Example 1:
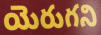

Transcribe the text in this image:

యెరుగని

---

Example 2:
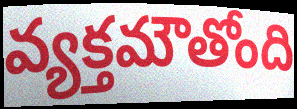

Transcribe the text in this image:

వ్యక్తమౌతోంది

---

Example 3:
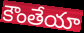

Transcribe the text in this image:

కౌంతేయా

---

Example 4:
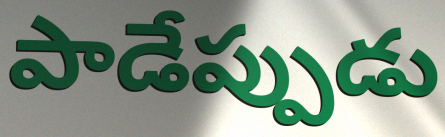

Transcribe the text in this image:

పాడేప్పుడు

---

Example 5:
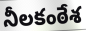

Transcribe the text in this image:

నీలకంఠేశ